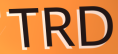
TRD